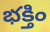
భక్తిం